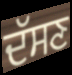
ਦੱਸਣ